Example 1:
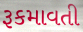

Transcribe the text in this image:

રૂકમાવતી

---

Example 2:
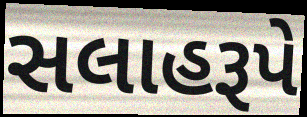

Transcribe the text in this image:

સલાહરૂપે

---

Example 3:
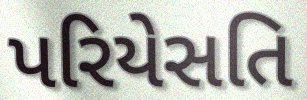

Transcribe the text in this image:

પરિયેસતિ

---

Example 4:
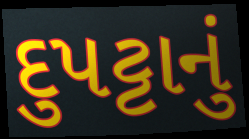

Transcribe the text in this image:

દુપટ્ટાનું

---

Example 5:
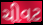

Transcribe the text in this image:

ચીવટ